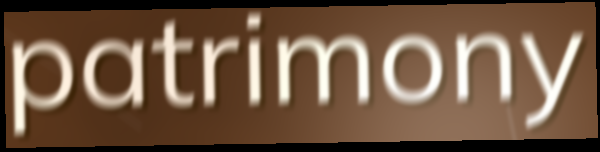
patrimony